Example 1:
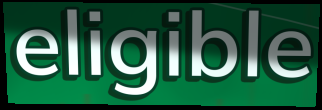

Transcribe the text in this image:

eligible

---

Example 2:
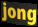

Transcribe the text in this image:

jong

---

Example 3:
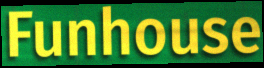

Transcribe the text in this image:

Funhouse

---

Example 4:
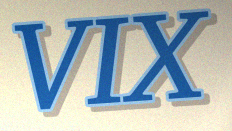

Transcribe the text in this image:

VIX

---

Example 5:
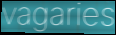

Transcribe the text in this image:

vagaries